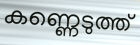
കണ്ണെടുത്ത്